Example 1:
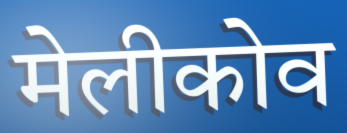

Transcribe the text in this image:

मेलीकोव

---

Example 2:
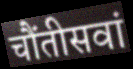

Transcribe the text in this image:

चौंतीसवां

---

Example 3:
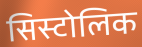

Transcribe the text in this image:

सिस्टोलिक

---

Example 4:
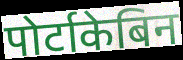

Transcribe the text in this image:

पोर्टाकेबिन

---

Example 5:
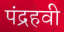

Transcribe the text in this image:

पंद्रहवी